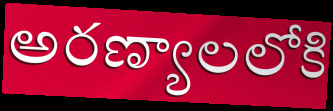
అరణ్యాలలోకి